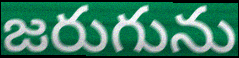
జరుగును